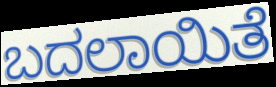
ಬದಲಾಯಿತೆ